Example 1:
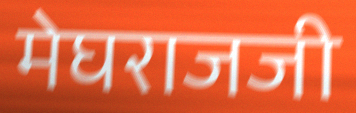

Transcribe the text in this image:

मेघराजजी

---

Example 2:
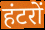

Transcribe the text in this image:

हंटरों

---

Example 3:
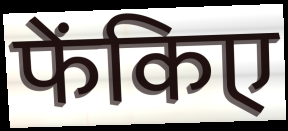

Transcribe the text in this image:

फेंकिए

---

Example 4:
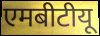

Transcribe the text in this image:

एमबीटीयू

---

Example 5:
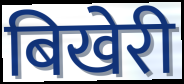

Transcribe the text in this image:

बिखेरी